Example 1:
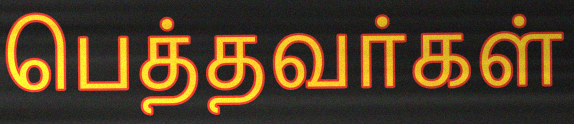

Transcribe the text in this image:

பெத்தவர்கள்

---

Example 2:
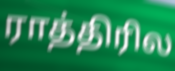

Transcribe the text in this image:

ராத்திரில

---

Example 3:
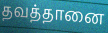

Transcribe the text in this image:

தவத்தானை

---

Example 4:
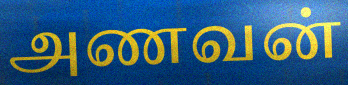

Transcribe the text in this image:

அணவன்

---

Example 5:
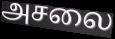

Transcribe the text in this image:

அசலை